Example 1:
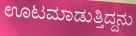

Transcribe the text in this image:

ಊಟಮಾಡುತ್ತಿದ್ದನು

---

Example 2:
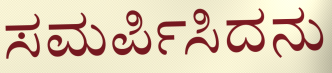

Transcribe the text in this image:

ಸಮರ್ಪಿಸಿದನು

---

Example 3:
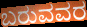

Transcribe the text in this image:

ಬರುವವರ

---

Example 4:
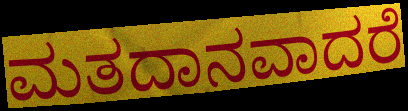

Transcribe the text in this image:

ಮತದಾನವಾದರೆ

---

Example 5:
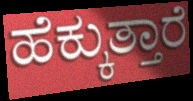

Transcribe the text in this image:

ಹೆಕ್ಕುತ್ತಾರೆ